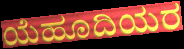
ಯೆಹೂದಿಯರ